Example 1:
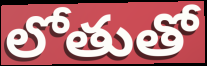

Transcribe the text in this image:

లోతుతో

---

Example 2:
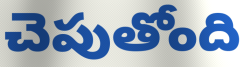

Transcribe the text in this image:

చెపుతోంది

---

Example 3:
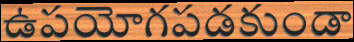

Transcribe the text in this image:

ఉపయోగపడకుండా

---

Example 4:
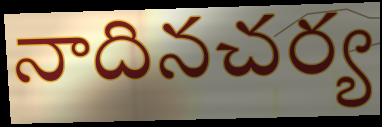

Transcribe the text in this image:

నాదినచర్య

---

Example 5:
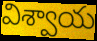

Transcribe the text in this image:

విశ్వాయ